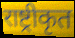
राष्ट्रीकृत